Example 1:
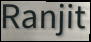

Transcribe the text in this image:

Ranjit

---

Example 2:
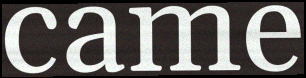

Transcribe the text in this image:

came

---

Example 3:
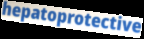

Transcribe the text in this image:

hepatoprotective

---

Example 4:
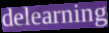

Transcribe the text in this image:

delearning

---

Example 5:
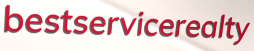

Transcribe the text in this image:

bestservicerealty